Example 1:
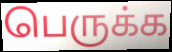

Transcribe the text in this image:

பெருக்க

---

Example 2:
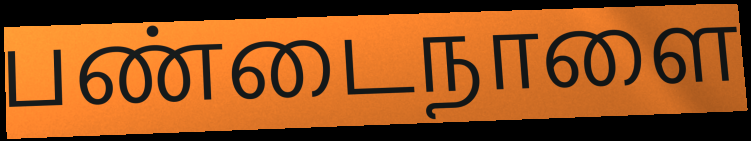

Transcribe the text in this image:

பண்டைநாளை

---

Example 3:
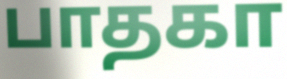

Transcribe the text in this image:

பாதகா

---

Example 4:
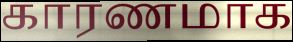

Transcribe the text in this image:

காரணமாக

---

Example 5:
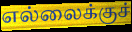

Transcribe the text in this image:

எல்லைக்குச்